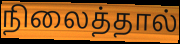
நிலைத்தால்